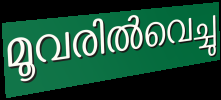
മൂവരിൽവെച്ചു